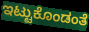
ಇಟ್ಟುಕೊಂಡಂತೆ